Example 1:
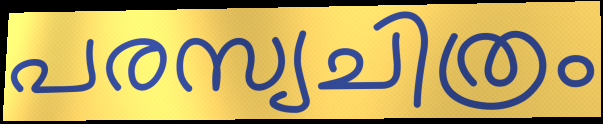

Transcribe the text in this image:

പരസ്യചിത്രം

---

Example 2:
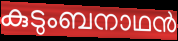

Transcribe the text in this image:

കുടുംബനാഥൻ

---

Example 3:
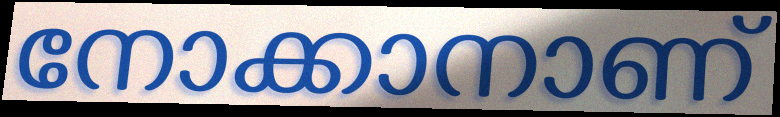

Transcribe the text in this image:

നോക്കാനാണ്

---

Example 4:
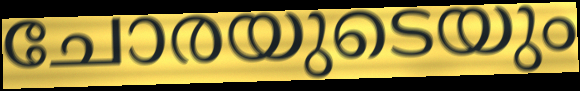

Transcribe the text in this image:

ചോരയുടെയും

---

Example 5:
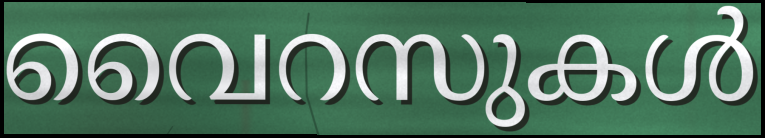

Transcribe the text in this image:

വൈറസുകൾ